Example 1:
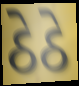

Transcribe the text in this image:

ઠેઠે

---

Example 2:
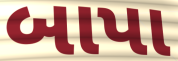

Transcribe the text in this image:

બાપા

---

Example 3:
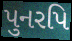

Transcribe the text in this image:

પુનરપિ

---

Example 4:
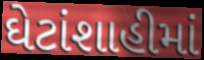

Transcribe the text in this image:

ઘેટાંશાહીમાં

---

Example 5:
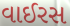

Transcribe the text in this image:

વાઈરસ